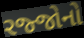
રજ્જોનો